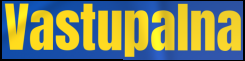
Vastupalna